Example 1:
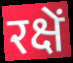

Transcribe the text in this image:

रक्षें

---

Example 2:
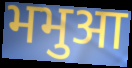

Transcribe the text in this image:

भभुआ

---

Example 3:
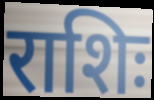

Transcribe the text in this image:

राशिः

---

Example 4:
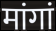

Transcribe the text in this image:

मांगां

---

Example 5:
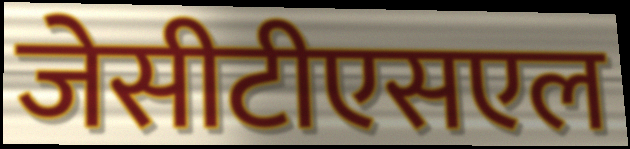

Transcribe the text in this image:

जेसीटीएसएल